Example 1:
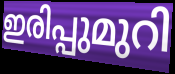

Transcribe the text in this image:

ഇരിപ്പുമുറി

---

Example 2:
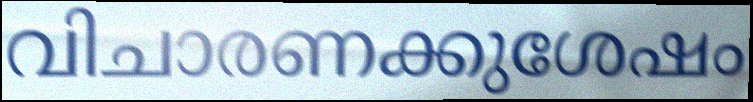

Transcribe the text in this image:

വിചാരണക്കുശേഷം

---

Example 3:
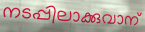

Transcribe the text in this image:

നടപ്പിലാക്കുവാന്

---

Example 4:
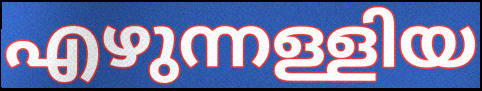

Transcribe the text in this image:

എഴുന്നള്ളിയ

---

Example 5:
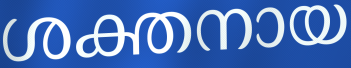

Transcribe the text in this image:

ശക്തനായ